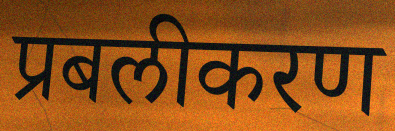
प्रबलीकरण